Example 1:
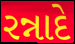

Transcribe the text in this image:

રન્નાદે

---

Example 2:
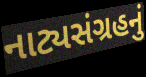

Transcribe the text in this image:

નાટ્યસંગ્રહનું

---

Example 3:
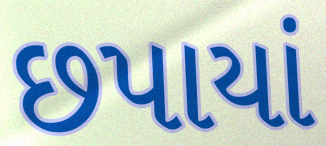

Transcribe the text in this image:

છપાયાં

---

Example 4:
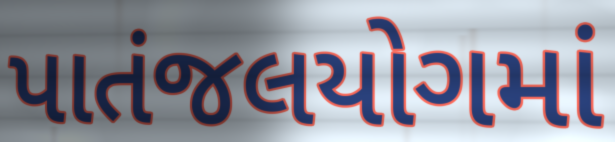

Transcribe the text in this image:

પાતંજલયોગમાં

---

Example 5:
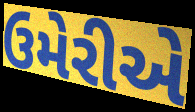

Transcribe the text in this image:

ઉમેરીએ